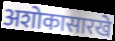
अशोकासारखे